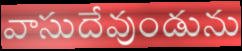
వాసుదేవుండును